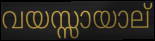
വയസ്സായാല്